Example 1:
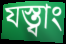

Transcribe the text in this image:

যস্ত্বাং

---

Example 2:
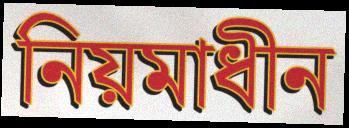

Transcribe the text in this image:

নিয়মাধীন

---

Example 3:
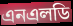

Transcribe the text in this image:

এনএলডি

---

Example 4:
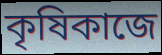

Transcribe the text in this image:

কৃষিকাজে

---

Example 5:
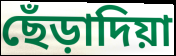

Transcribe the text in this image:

ছেঁড়াদিয়া